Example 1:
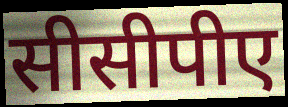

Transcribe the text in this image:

सीसीपीए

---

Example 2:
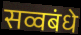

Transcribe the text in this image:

सव्वबंधे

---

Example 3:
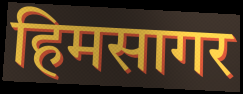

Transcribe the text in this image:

हिमसागर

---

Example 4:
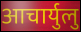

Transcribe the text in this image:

आचार्युलु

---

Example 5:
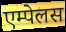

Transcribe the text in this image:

एम्पेलस